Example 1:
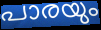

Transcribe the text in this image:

പാരയും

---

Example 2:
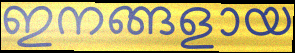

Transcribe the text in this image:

ഇനങ്ങളായ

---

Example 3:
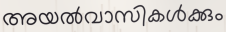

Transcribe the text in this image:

അയൽവാസികൾക്കും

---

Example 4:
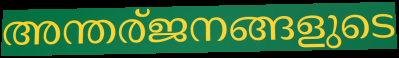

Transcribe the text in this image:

അന്തര്ജനങ്ങളുടെ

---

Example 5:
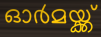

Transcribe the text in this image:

ഓർമയ്ക്ക്